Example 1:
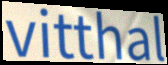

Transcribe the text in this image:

vitthal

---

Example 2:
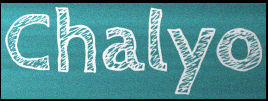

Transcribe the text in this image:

Chalyo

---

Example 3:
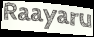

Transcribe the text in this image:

Raayaru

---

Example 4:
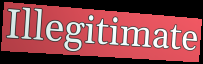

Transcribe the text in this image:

Illegitimate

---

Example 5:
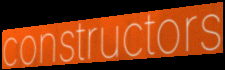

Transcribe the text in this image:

constructors